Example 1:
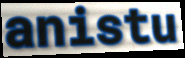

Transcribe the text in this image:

anistu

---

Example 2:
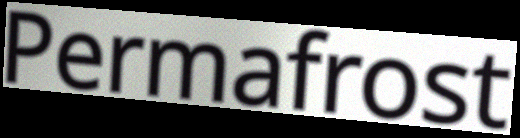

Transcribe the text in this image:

Permafrost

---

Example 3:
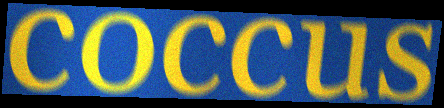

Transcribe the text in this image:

coccus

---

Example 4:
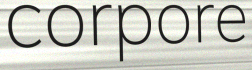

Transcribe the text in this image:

corpore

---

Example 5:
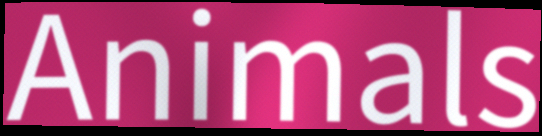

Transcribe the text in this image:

Animals